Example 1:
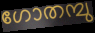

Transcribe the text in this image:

ഗോതമ്പു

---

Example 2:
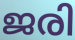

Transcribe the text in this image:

ജരി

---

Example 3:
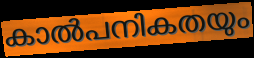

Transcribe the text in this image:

കാൽപനികതയും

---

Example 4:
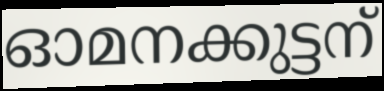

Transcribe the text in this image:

ഓമനക്കുട്ടന്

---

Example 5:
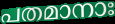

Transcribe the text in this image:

പതമാനാഃ